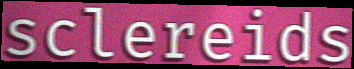
sclereids